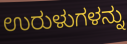
ಉರುಳುಗಳನ್ನು